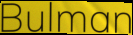
Bulman